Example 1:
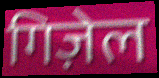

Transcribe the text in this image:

गिज़ेल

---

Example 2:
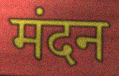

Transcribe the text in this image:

मंदन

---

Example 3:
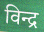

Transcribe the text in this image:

विन्द्र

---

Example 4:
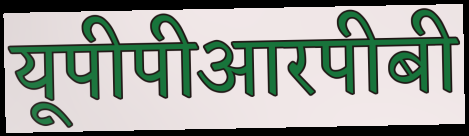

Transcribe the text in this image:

यूपीपीआरपीबी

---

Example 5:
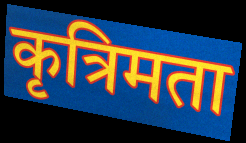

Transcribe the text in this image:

कृत्रिमता